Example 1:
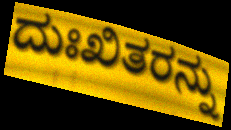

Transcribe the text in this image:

ದುಃಖಿತರನ್ನು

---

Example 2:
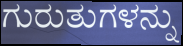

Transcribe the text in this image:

ಗುರುತುಗಳನ್ನು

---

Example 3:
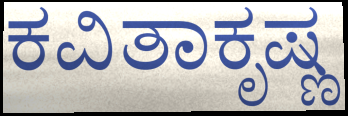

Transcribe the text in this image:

ಕವಿತಾಕೃಷ್ಣ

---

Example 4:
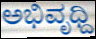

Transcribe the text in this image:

ಅಭಿವೃಧ್ದಿ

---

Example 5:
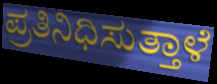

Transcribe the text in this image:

ಪ್ರತಿನಿಧಿಸುತ್ತಾಳೆ